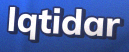
Iqtidar